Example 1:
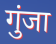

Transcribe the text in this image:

गुंजा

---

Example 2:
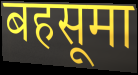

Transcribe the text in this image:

बहसूमा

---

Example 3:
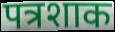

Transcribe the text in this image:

पत्रशाक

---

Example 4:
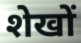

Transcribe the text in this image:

शेखों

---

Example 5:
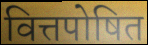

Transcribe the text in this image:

वित्तपोषित